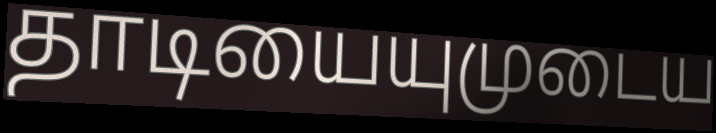
தாடியையுமுடைய